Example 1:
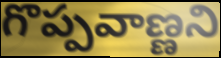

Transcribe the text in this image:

గొప్పవాణ్ణని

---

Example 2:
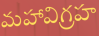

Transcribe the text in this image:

మహావిగ్రహ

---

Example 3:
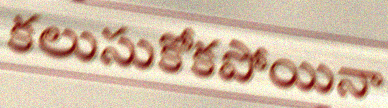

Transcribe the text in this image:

కలుసుకోకపోయినా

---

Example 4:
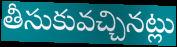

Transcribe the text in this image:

తీసుకువచ్చినట్లు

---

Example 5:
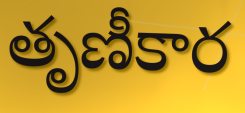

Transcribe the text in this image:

తృణీకార